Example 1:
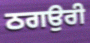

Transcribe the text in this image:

ਠਗਉਰੀ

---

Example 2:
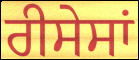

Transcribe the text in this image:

ਰੀਸੇਸਾਂ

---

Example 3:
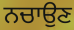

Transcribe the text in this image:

ਨਚਾਉਣ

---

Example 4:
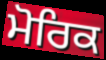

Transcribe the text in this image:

ਮੋਰਿਕ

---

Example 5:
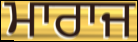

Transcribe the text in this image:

ਮਾਰਾਜ